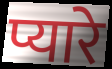
प्यारे